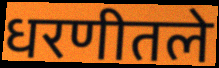
धरणीतले